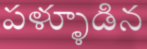
పళ్ళూడిన